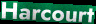
Harcourt